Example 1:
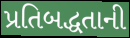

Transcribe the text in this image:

પ્રતિબદ્ધતાની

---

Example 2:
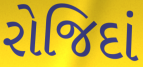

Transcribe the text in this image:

રોજિદાં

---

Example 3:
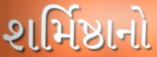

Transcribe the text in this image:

શર્મિષ્ઠાનો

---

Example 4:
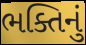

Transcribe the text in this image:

ભક્તિનું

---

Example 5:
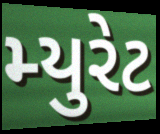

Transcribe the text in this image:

મ્યુરેટ